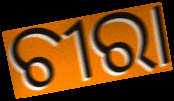
ଚୀରା